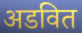
अडवित